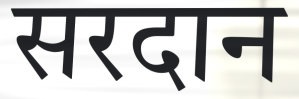
सरदान